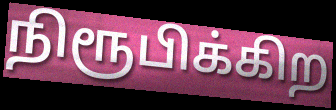
நிரூபிக்கிற